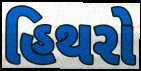
હિથરો